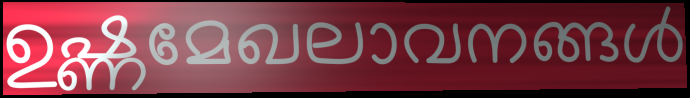
ഉഷ്ണമേഖലാവനങ്ങൾ